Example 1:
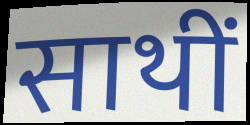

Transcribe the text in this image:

साथीं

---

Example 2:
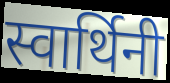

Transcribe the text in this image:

स्वार्थिनी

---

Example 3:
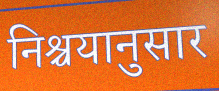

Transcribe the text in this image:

निश्चयानुसार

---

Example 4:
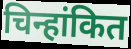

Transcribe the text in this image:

चिन्हांकित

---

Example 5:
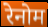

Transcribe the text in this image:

रेनोम